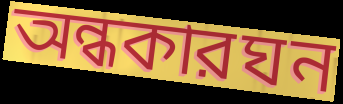
অন্ধকারঘন